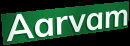
Aarvam